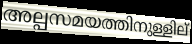
അല്പസമയത്തിനുള്ളില്